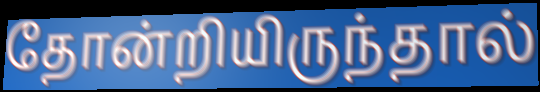
தோன்றியிருந்தால்